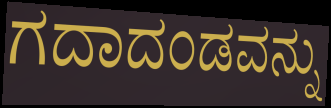
ಗದಾದಂಡವನ್ನು